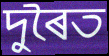
দুৰৈত